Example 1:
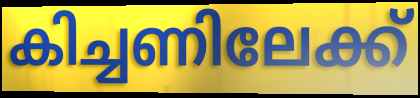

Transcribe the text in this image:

കിച്ചണിലേക്ക്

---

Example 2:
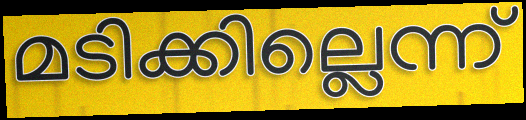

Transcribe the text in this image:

മടിക്കില്ലെന്ന്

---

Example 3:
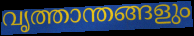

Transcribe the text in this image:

വൃത്താന്തങ്ങളും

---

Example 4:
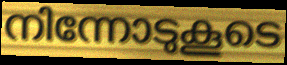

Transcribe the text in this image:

നിന്നോടുകൂടെ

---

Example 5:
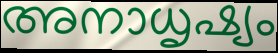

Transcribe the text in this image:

അനാധൃഷ്യം